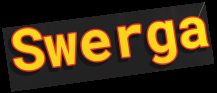
Swerga